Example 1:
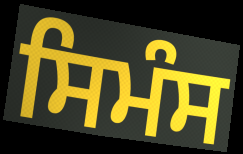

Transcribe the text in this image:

ਸਿਮੰਸ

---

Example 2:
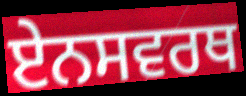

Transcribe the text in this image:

ਏਨਸਵਰਥ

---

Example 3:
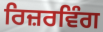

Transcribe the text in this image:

ਰਿਜ਼ਰਵਿੰਗ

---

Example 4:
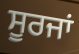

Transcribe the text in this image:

ਸੂਰਜਾਂ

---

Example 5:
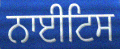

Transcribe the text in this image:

ਨਾਈਟਿਸ